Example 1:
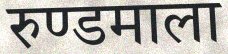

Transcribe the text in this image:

रुण्डमाला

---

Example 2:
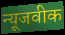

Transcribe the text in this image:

न्यूजवीक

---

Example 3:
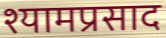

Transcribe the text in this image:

श्यामप्रसाद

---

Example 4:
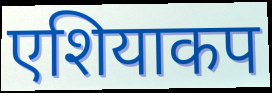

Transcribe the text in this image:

एशियाकप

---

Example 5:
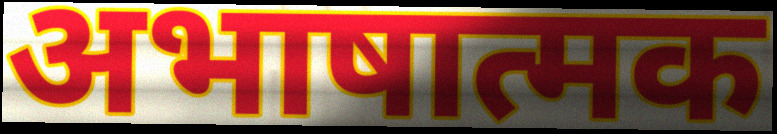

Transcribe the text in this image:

अभाषात्मक